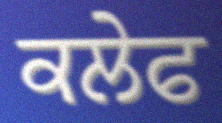
ਕਲੇਫ